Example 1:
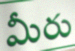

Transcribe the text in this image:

మీరు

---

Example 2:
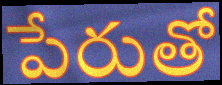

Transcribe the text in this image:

పేరుతో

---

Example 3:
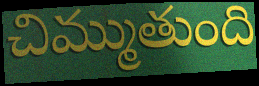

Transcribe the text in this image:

చిమ్ముతుంది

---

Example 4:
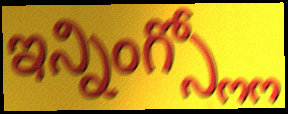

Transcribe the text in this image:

ఇన్నింగ్స్ల్లో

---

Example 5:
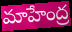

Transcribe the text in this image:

మాహేంద్ర